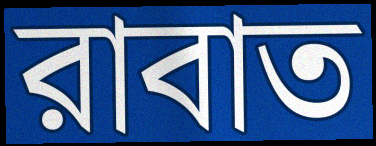
রাবাত